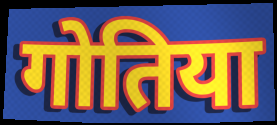
गोतिया